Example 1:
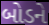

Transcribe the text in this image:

બોડને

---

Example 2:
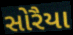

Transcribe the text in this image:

સોરૈયા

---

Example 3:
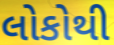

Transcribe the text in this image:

લોકોથી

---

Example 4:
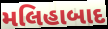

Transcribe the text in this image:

મલિહાબાદ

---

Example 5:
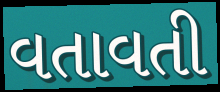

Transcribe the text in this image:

વતાવતી